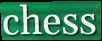
chess